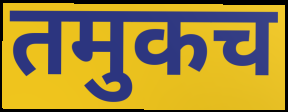
तमुकच